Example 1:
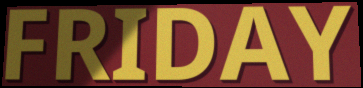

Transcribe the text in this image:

FRIDAY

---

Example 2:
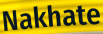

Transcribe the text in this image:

Nakhate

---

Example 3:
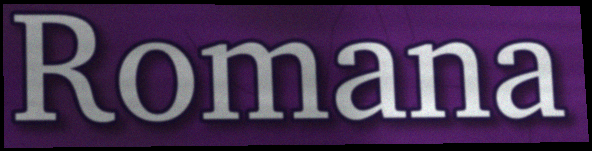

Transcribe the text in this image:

Romana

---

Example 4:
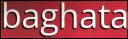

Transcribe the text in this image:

baghata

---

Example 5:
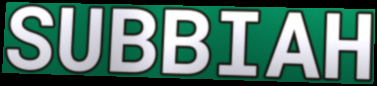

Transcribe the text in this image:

SUBBIAH